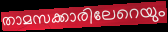
താമസക്കാരിലേറെയും